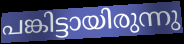
പങ്കിട്ടായിരുന്നു